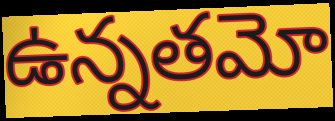
ఉన్నతమో